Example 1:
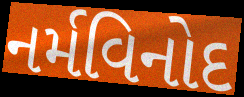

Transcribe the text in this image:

નર્મવિનોદ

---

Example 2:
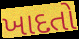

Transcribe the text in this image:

ખાદતો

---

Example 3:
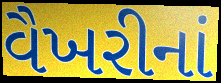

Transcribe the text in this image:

વૈખરીનાં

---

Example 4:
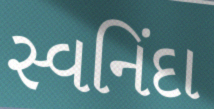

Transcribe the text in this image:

સ્વનિંદા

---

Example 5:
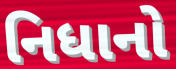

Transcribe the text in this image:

નિધાનો